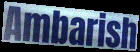
Ambarish